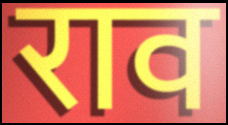
राव